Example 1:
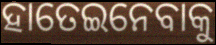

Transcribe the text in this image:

ହାତେଇନେବାକୁ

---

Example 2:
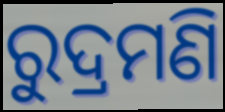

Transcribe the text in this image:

ରୁଦ୍ରମଣି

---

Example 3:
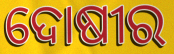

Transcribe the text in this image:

ଦୋଷୀର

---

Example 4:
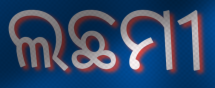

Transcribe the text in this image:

ଲଛମୀ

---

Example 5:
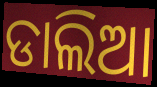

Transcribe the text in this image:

ଡାଲିଆ